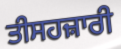
ਤੀਸਹਜ਼ਾਰੀ